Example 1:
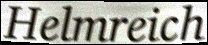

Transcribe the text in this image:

Helmreich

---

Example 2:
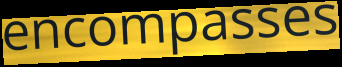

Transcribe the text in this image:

encompasses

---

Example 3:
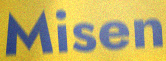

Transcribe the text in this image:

Misen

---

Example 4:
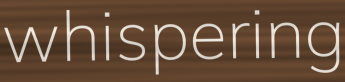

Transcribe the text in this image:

whispering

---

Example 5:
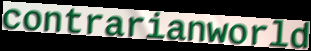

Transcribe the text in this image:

contrarianworld